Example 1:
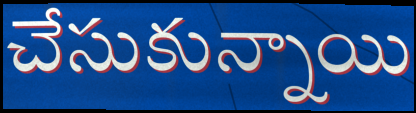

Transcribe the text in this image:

చేసుకున్నాయి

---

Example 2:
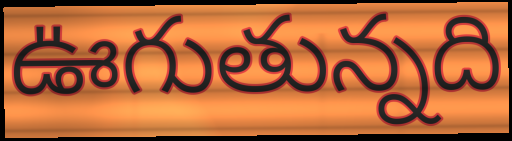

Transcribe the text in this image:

ఊగుతున్నది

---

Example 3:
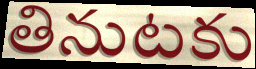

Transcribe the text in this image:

తినుటకు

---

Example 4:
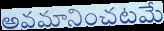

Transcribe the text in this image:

అవమానించటమే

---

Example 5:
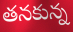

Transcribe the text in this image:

తనకున్న